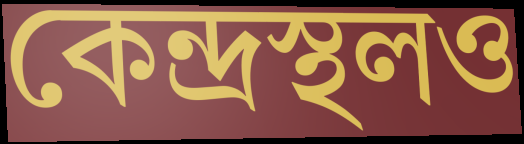
কেন্দ্রস্থলও